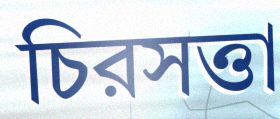
চিরসত্তা